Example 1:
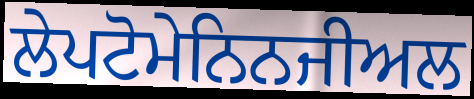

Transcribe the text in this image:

ਲੇਪਟੋਮੇਨਿਨਜੀਅਲ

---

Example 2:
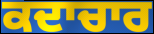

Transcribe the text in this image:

ਕਦਾਚਾਰ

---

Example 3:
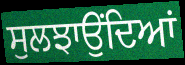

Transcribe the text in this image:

ਸੁਲਝਾਉਂਦਿਆਂ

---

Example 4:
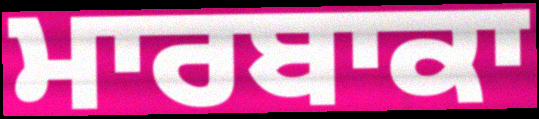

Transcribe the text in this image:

ਮਾਰਬਾਕਾ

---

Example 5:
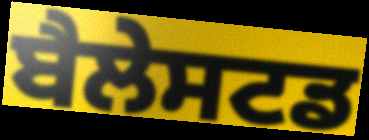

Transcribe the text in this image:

ਬੈਲੇਸਟਡ